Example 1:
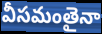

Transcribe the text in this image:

వీసమంతైనా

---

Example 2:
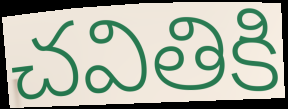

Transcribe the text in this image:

చవితికి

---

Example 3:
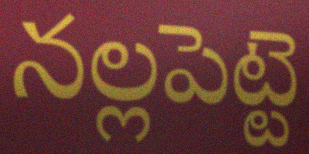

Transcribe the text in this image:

నల్లపెట్టె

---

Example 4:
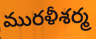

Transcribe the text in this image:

మురళీశర్మ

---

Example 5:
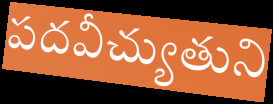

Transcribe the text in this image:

పదవీచ్యుతుని